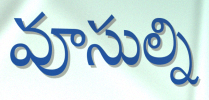
వూసుల్ని